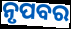
ନୃପବର